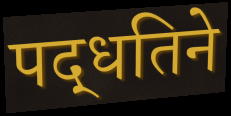
पद्धतिने